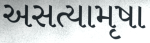
અસત્યામૃષા